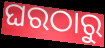
ଘରଠାରୁ